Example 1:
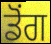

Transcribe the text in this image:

ਡੋਂਗ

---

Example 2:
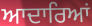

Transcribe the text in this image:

ਆਦਾਰਿਆਂ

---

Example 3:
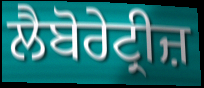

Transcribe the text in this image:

ਲੈਬੋਰੇਟ੍ਰੀਜ਼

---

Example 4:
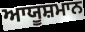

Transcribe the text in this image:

ਆਯੂਸ਼ਮਾਨ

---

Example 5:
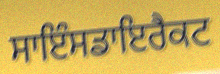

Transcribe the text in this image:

ਸਾਇੰਸਡਾਇਰੈਕਟ